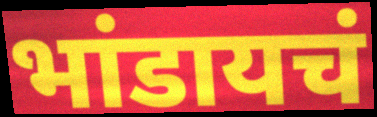
भांडायचं